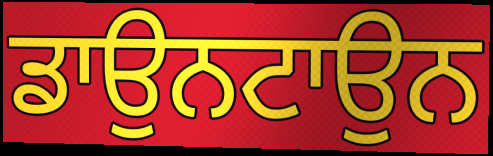
ਡਾਉਨਟਾਉਨ